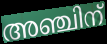
അഞ്ചിന്